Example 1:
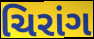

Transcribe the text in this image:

ચિરાંગ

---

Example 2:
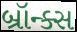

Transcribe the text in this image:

બ્રૉન્ક્સ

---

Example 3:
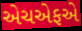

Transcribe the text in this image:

એચએફએ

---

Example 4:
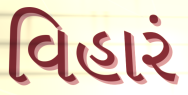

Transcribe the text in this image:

વિહારં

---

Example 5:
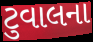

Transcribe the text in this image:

ટુવાલના